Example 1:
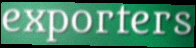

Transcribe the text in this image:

exporters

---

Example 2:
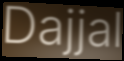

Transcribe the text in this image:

Dajjal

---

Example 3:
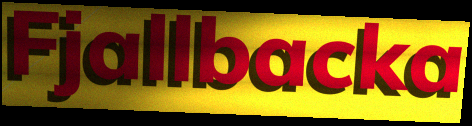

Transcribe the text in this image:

Fjallbacka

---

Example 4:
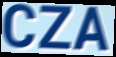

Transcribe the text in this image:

CZA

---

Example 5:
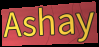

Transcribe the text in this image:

Ashay